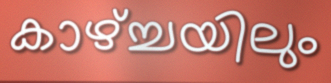
കാഴ്ച്ചയിലും